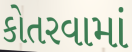
કોતરવામાં